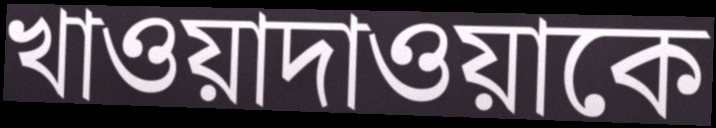
খাওয়াদাওয়াকে